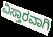
ವಿಸ್ತಾರವಾಗಿ